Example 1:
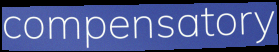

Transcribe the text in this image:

compensatory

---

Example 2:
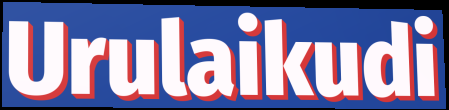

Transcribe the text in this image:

Urulaikudi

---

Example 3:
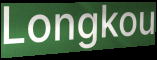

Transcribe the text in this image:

Longkou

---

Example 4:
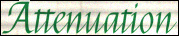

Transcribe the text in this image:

Attenuation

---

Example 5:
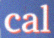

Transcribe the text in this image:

cal